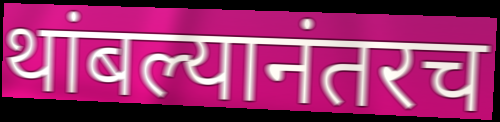
थांबल्यानंतरच